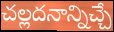
చల్లదనాన్నిచ్చే